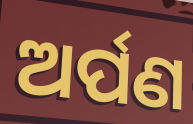
ଅର୍ପଣ